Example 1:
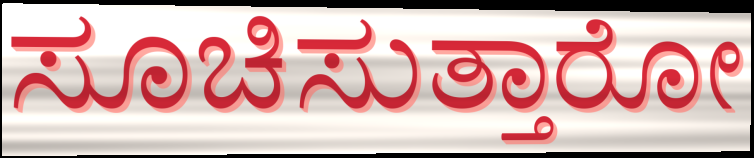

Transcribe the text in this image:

ಸೂಚಿಸುತ್ತಾರೋ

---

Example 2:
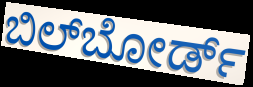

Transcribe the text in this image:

ಬಿಲ್‌ಬೋರ್ಡ್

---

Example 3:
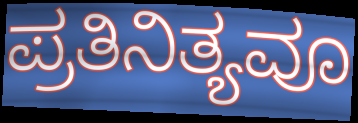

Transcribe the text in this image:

ಪ್ರತಿನಿತ್ಯವೂ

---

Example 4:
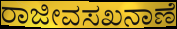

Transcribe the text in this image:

ರಾಜೀವಸಖನಾಣೆ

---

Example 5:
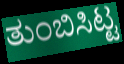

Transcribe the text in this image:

ತುಂಬಿಸಿಟ್ಟ